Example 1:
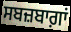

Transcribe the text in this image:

ਸਬਜ਼ਬਾਗ਼ਾਂ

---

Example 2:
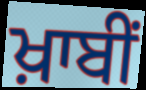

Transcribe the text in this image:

ਖ਼ਾਬੀਂ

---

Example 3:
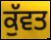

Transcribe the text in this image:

ਕੁੱਵਤ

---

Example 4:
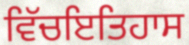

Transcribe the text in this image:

ਵਿੱਚਇਤਿਹਾਸ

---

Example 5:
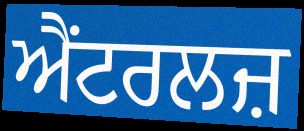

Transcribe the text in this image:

ਐਂਟਰਲਜ਼